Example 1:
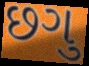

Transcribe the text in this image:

છગુ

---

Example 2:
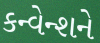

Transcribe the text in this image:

કન્વેન્શને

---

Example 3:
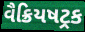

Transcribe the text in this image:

વૈક્રિયષટ્રક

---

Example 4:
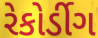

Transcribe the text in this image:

રેકોર્ડીગ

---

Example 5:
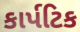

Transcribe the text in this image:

કાર્પટિક